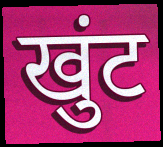
खुंट